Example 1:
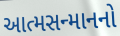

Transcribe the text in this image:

આત્મસન્માનનો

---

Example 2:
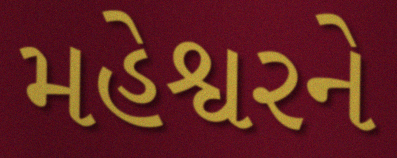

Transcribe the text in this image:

મહેશ્વરને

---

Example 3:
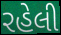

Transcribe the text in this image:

રહેલી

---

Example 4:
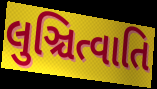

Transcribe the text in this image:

લુઞ્ચિત્વાતિ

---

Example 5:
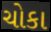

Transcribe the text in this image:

ચોકા